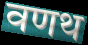
वणथ